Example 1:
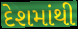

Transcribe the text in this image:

દેશમાંથી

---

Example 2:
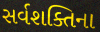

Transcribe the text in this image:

સર્વશક્તિના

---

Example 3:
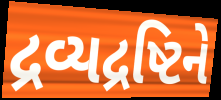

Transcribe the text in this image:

દ્રવ્યદ્રષ્ટિને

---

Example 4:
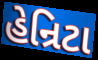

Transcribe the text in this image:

હેન્રિટા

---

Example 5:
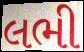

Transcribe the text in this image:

લભી